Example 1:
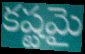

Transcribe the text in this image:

కష్టమై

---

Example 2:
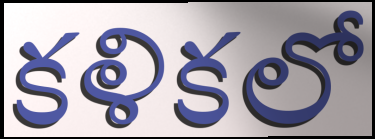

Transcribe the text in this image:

కళికలో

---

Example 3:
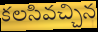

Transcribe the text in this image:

కలసివచ్చిన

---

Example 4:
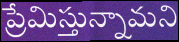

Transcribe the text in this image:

ప్రేమిస్తున్నామని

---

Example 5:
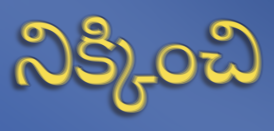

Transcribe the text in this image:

నిక్కించి